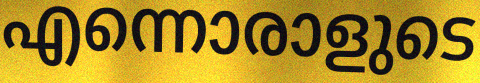
എന്നൊരാളുടെ